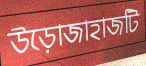
উড়োজাহাজটি